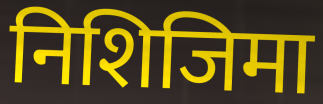
निशिजिमा